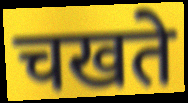
चखते